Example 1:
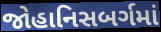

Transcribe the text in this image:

જોહાનિસબર્ગમાં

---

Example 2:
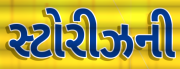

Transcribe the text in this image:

સ્ટોરીઝની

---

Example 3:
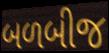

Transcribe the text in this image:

બળબીજ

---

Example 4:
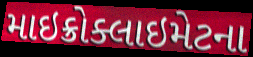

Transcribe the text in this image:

માઇક્રોક્લાઇમેટના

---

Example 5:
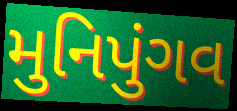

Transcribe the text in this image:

મુનિપુંગવ